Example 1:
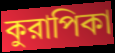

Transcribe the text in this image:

কুরাপিকা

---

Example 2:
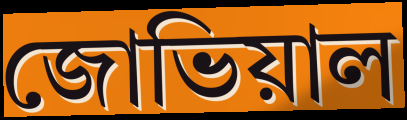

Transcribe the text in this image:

জোভিয়াল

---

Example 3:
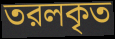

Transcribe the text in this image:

তরলকৃত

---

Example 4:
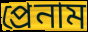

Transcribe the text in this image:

প্রেনাম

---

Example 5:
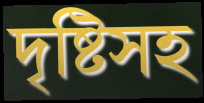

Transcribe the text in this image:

দৃষ্টিসহ